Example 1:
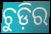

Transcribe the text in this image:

ଚୁଡ଼ିର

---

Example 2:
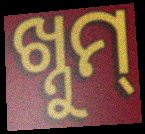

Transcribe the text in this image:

ଖ୍ନୁମ୍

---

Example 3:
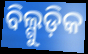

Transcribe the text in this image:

ବିଲ୍ଗୁଡ଼ିକ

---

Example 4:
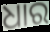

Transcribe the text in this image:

ଧାର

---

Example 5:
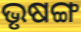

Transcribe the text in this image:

ଭୃଷଙ୍ଗ